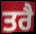
ਤਰੈ